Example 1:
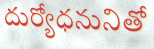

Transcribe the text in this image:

దుర్యోధనునితో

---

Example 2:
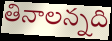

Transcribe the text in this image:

తినాలన్నది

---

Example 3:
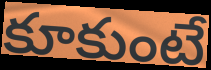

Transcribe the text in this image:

కూకుంటే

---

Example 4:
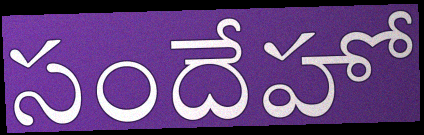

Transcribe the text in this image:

సందేహో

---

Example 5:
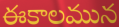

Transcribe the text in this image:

ఈకాలమున